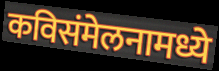
कविसंमेलनामध्ये